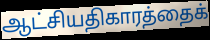
ஆட்சியதிகாரத்தைக்